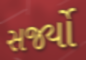
સર્જ્યો